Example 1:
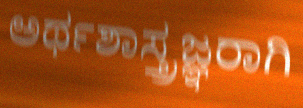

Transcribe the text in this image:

ಅರ್ಥಶಾಸ್ತ್ರಜ್ಞರಾಗಿ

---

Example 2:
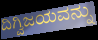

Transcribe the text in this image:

ದಿಗ್ವಿಜಯವನ್ನು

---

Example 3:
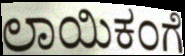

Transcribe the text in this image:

ಲಾಯಿಕಂಗೆ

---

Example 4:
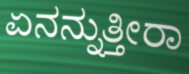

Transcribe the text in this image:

ಏನನ್ನುತ್ತೀರಾ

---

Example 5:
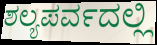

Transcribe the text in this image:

ಶಲ್ಯಪರ್ವದಲ್ಲಿ